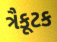
ત્રૈકૂટક